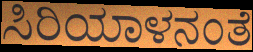
ಸಿರಿಯಾಳನಂತೆ